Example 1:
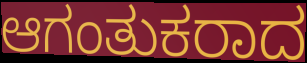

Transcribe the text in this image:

ಆಗಂತುಕರಾದ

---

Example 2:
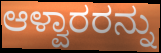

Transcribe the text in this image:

ಆಳ್ವಾರರನ್ನು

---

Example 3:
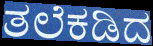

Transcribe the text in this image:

ತಲೆಕಡಿದ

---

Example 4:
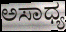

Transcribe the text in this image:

ಅಸಾಧ್ಯ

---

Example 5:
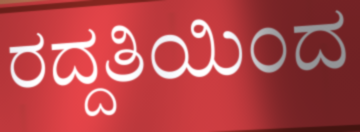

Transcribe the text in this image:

ರದ್ದತಿಯಿಂದ